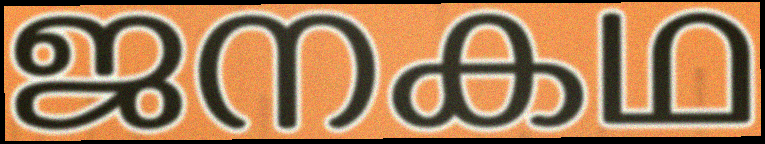
ജനകഥ